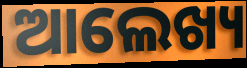
ଆଲେଖ୍ୟ